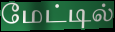
மேட்டில்